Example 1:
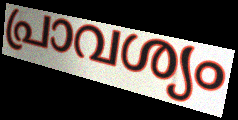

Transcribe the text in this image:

പ്രാവശ്യം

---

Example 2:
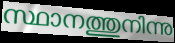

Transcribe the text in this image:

സ്ഥാനത്തുനിന്നു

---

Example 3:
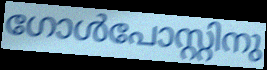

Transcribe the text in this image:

ഗോൾപോസ്റ്റിനു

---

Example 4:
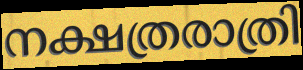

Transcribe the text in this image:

നക്ഷത്രരാത്രി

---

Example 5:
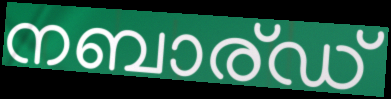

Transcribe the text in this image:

നബാര്ഡ്